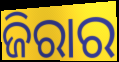
ଜିରାର